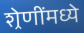
श्रेणींमध्ये